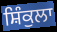
ਸ਼ਿੰਕੁਲਾ